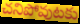
చనిపోవుటకు